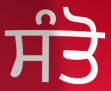
ਸੰਤੋ